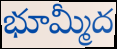
భూమ్మీద